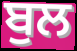
ਬੁਲ